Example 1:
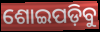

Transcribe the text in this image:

ଶୋଇପଡ଼ିବୁ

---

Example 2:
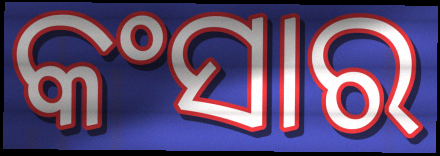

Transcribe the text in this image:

କଂସାର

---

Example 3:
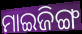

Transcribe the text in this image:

ମାଇଜିଙ୍ଗ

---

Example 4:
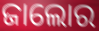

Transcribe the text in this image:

ଜାଲୋର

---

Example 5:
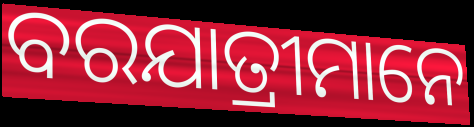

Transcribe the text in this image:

ବରଯାତ୍ରୀମାନେ